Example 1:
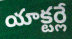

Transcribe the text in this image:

యాక్టర్లే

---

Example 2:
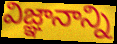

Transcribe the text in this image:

విజ్ఞానాన్ని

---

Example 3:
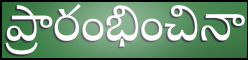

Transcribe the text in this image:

ప్రారంభించినా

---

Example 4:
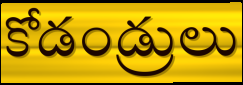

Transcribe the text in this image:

కోడండ్రులు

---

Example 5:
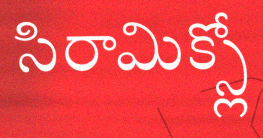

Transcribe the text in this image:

సిరామిక్స్లో